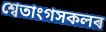
শ্বেতাংগসকলৰ